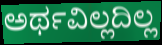
ಅರ್ಥವಿಲ್ಲದಿಲ್ಲ